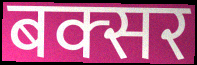
बक्‍सर